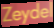
Zeydel